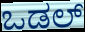
ಒಡಲ್